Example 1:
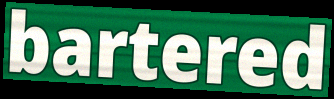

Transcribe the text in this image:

bartered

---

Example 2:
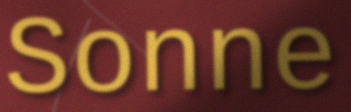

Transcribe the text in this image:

Sonne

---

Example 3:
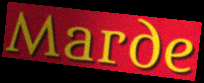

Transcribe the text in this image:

Marde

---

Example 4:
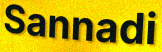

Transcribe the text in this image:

Sannadi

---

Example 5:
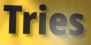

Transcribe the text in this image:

Tries